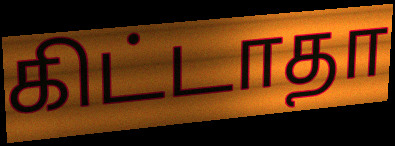
கிட்டாதா